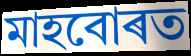
মাহবোৰত